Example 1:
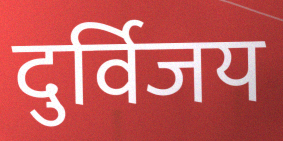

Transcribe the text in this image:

दुर्विजय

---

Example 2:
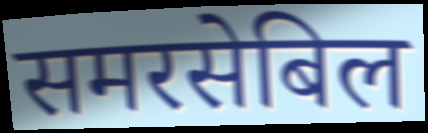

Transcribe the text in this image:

समरसेबिल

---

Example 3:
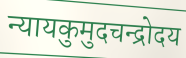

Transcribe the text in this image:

न्यायकुमुदचन्द्रोदय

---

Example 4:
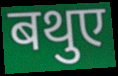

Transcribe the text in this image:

बथुए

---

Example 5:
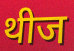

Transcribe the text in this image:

थीज